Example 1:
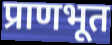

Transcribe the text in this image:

प्राणभूत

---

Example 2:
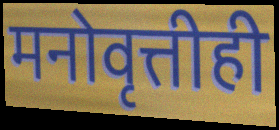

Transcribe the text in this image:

मनोवृत्तीही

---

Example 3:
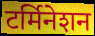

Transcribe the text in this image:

टर्मिनेशन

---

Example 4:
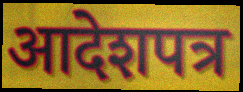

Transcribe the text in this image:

आदेशपत्र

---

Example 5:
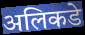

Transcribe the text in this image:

अलिकडे